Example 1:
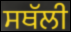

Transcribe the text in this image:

ਸਥੱਲੀ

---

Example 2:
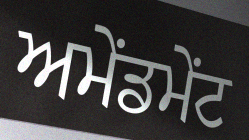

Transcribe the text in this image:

ਅਮੇਂਡਮੇਂਟ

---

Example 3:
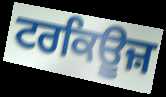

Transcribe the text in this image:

ਟਰਕਿਊਜ਼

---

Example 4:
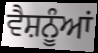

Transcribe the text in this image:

ਵੈਸ਼ਨੂੰਆਂ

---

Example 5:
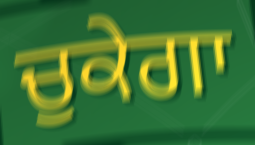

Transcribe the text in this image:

ਚੁਕੇਗਾ